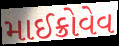
માઈક્રોવેવ